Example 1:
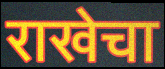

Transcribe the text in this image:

राखेचा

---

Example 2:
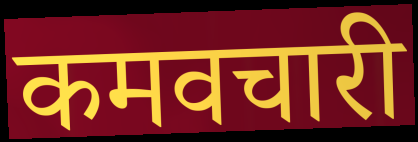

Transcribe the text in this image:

कमवचारी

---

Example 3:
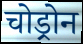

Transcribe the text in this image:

चोड्रोन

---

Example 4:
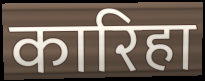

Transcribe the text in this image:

कारिहा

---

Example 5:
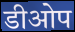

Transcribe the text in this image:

डीओप